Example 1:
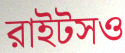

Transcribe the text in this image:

রাইটসও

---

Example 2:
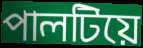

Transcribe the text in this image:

পালটিয়ে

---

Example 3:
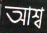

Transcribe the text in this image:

আশ্ব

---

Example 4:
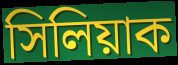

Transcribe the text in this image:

সিলিয়াক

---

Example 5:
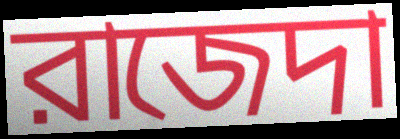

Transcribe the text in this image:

রাজেদা